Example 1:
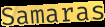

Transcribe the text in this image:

Samaras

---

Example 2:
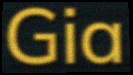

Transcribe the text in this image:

Gia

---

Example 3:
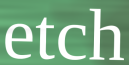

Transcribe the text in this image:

etch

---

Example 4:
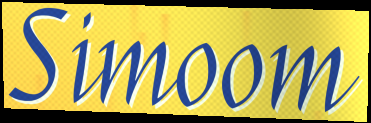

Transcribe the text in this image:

Simoom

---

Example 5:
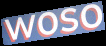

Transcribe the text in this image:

woso